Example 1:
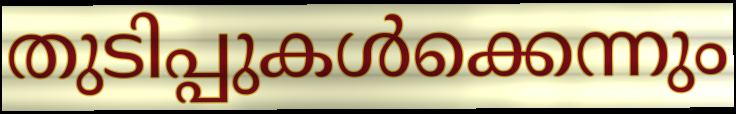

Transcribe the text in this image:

തുടിപ്പുകൾക്കെന്നും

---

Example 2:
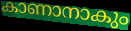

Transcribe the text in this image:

കാണാനാകും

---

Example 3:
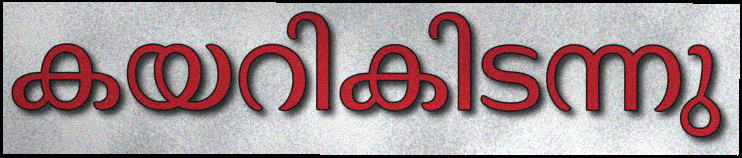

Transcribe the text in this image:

കയറികിടന്നു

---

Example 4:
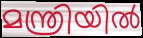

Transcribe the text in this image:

മന്ത്രിയിൽ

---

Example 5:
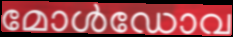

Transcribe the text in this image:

മോൾഡോവ